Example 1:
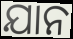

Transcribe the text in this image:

ଯାନ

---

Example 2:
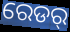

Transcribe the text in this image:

ରେଡର୍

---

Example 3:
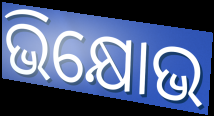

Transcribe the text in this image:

ଭିକ୍ଷୋଭ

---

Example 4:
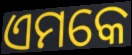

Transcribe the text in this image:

ଏମକେ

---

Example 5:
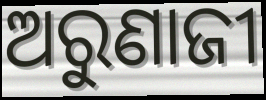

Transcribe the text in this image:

ଅରୁଣାଜୀ